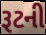
રૂટની